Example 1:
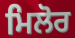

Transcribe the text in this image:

ਮਿਲੋਰ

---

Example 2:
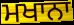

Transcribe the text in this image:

ਮਖਾਨਾ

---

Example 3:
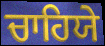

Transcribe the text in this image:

ਚਾਹਿਯੇ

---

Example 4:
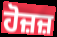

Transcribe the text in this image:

ਹੋਜ਼ਜ਼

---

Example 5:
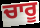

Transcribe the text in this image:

ਚਾਰੂ